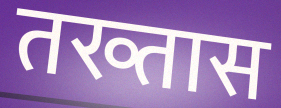
तख्तास